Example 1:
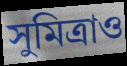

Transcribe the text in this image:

সুমিত্রাও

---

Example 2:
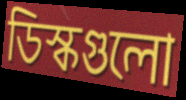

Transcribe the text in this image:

ডিস্কগুলো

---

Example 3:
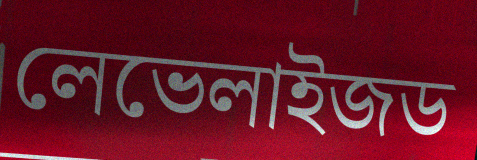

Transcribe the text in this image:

লেভেলাইজড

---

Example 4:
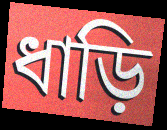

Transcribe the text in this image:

ধাড়ি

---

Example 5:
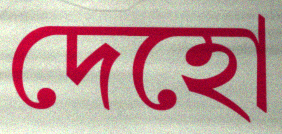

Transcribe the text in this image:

দেহো